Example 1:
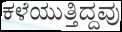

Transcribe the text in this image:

ಕಳೆಯುತ್ತಿದ್ದವು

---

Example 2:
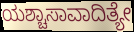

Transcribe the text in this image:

ಯಶ್ಚಾಸಾವಾದಿತ್ಯೇ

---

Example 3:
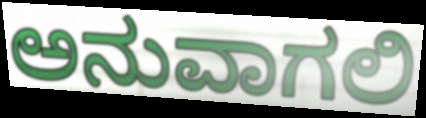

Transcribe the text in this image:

ಅನುವಾಗಲಿ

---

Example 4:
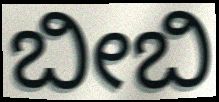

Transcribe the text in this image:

ಬೀಬಿ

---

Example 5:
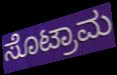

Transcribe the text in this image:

ಸೊಟ್ರಾಮ